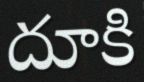
దూకి